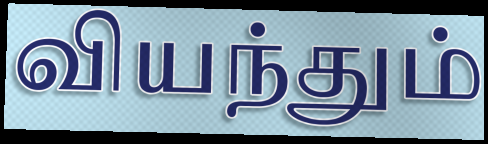
வியந்தும்